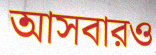
আসবারও